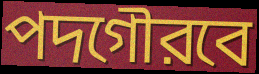
পদগৌরবে